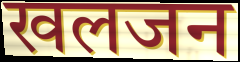
खलजन